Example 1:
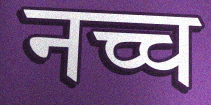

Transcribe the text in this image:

नच्च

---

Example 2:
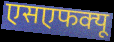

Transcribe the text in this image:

एसएफक्यू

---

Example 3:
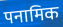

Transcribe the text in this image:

पनामिक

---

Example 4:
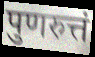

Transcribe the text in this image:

पुणरुत्तं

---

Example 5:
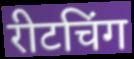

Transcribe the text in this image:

रीटचिंग